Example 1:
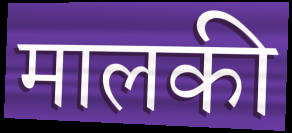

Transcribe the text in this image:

मालकी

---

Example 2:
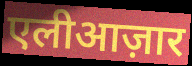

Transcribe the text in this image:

एलीआज़ार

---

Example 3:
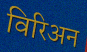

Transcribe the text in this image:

विरिअन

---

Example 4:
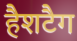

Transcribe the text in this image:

हैशटैग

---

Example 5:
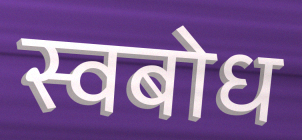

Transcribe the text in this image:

स्वबोध